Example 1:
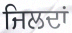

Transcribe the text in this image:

ਜਿਲਦਾਂ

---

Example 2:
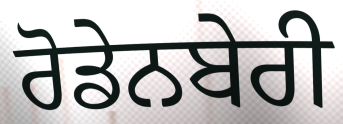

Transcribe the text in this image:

ਰੋਡੇਨਬੇਰੀ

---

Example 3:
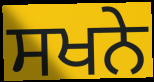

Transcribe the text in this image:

ਸਖਨੇ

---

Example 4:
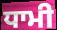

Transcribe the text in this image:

ਧਾਮੀ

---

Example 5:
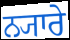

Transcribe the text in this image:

ਨ੍ਯਾਰੇ